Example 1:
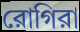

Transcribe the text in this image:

রোগিরা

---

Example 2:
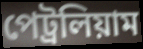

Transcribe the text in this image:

পেট্রলিয়াম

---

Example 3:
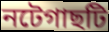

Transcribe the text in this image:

নটেগাছটি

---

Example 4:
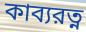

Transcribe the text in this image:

কাব্যরত্ন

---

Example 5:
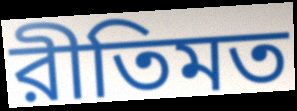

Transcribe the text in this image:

রীতিমত